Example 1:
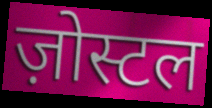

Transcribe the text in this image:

ज़ोस्टल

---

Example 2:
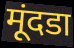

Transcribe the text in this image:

मूंदडा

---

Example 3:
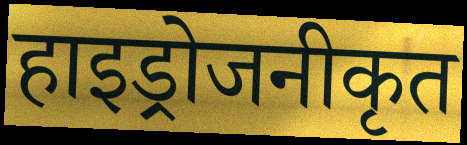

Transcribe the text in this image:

हाइड्रोजनीकृत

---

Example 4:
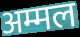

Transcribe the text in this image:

अम्मल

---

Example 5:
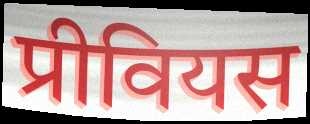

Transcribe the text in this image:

प्रीवियस